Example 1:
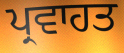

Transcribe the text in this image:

ਪ੍ਰਵਾਹਤ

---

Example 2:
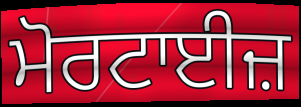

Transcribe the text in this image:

ਮੋਰਟਾਈਜ਼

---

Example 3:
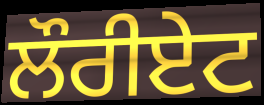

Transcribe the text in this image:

ਲੌਰੀਏਟ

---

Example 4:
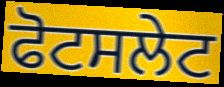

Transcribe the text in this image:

ਫੋਟਸਲੇਟ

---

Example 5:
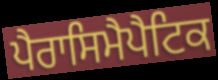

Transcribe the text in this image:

ਪੈਰਾਸਿਮੈਪੈਟਿਕ